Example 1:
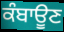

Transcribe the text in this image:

ਕੰਬਾਊਣ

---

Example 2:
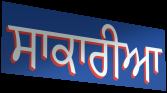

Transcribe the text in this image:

ਸਾਕਾਰੀਆ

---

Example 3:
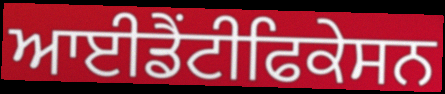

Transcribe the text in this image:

ਆਈਡੈਂਟੀਫਿਕੇਸਨ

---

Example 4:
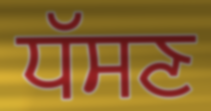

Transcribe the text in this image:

ਧੱਸਣ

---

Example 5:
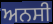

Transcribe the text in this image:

ਅਨਸੀ